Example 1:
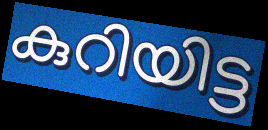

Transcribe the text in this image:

കുറിയിട്ട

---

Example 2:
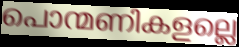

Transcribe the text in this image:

പൊന്മണികളല്ലെ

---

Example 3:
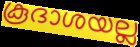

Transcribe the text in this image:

കൂദാശയല്ല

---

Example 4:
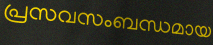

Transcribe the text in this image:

പ്രസവസംബന്ധമായ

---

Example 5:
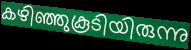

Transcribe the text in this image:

കഴിഞ്ഞുകൂടിയിരുന്നു